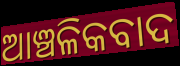
ଆଞ୍ଚଳିକବାଦ